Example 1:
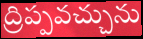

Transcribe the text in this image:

ద్రిప్పవచ్చును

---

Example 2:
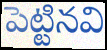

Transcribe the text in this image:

పెట్టినవి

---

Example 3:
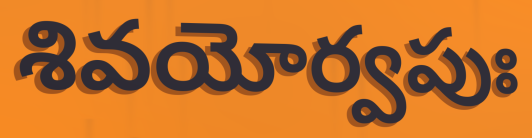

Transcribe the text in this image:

శివయోర్వపుః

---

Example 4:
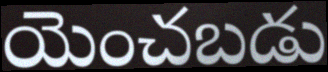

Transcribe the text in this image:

యెంచబడు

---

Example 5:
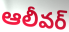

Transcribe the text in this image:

ఆలీవర్